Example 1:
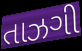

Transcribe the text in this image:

તાઝગી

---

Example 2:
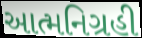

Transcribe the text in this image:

આત્મનિગ્રહી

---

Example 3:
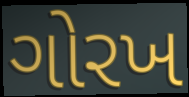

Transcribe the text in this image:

ગોરખ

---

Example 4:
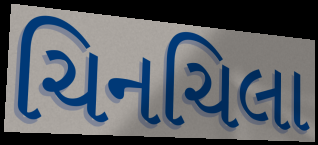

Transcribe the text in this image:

ચિનચિલા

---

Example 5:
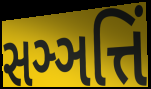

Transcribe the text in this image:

સઞ્ઞત્તિં